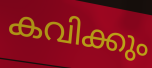
കവിക്കും